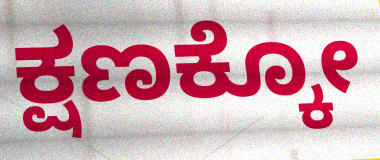
ಕ್ಷಣಕ್ಕೋ